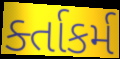
ર્ક્તાકર્મ